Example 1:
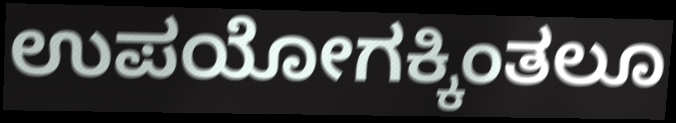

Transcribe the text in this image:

ಉಪಯೋಗಕ್ಕಿಂತಲೂ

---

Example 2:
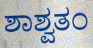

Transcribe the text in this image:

ಶಾಶ್ವತಂ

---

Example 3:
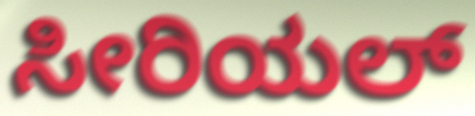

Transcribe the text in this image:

ಸೀರಿಯಲ್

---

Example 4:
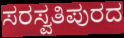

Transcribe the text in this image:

ಸರಸ್ವತಿಪುರದ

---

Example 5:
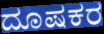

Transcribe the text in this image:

ದೂಷಕರ